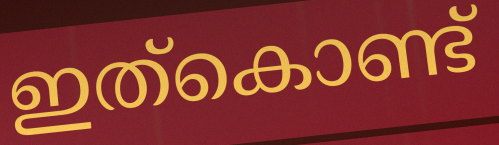
ഇത്കൊണ്ട്